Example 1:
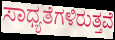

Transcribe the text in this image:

ಸಾಧ್ಯತೆಗಳಿರುತ್ತವೆ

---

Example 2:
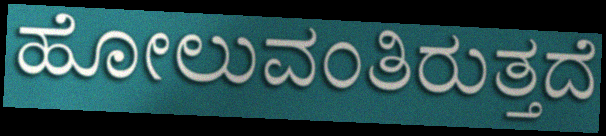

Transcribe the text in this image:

ಹೋಲುವಂತಿರುತ್ತದೆ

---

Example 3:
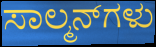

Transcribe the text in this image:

ಸಾಲ್ಮನ್‌ಗಳು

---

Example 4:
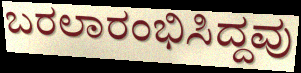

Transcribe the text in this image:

ಬರಲಾರಂಭಿಸಿದ್ದವು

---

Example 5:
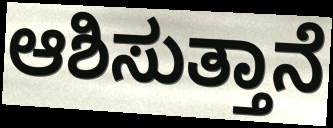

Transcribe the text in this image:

ಆಶಿಸುತ್ತಾನೆ